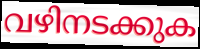
വഴിനടക്കുക